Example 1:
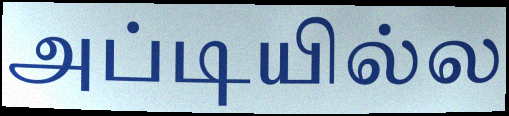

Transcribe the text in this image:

அப்டியில்ல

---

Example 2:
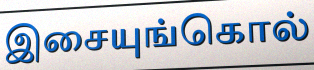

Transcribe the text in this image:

இசையுங்கொல்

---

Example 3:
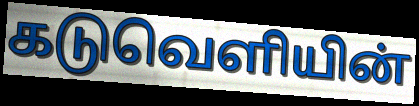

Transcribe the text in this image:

கடுவெளியின்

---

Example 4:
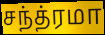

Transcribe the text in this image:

சந்த்ரமா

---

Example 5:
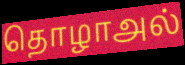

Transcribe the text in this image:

தொழாஅல்